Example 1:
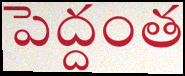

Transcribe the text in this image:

పెద్దంత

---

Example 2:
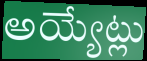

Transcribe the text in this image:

అయ్యేట్లు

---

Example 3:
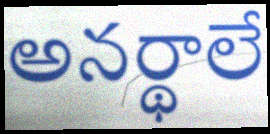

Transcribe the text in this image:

అనర్థాలే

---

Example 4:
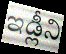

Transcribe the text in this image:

ఇడ్లీని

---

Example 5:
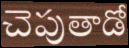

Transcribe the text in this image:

చెపుతాడో